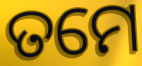
ତମେ